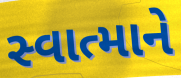
સ્વાત્માને